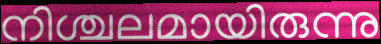
നിശ്ചലമായിരുന്നു